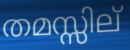
തമസ്സില്